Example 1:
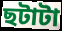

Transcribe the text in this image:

ছটাটা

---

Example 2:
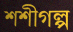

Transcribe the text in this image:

শশীগল্প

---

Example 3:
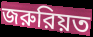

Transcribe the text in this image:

জরুরিয়ত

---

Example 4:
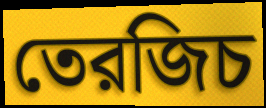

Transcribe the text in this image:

তেরজিচ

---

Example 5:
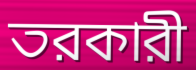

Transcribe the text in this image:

তরকারী